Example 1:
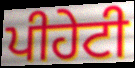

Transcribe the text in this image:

ਪੀਹੇਟੀ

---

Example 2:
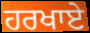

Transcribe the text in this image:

ਹਰਖਾਏ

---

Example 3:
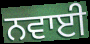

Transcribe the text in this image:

ਨਵਾਈ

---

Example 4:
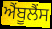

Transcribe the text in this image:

ਐੰਬੂਲੈਂਸ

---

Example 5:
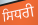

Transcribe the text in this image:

ਸਿਧਰੀ